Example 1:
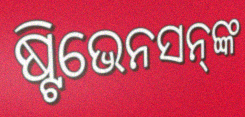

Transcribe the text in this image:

ଷ୍ଟିଭେନସନ୍‍ଙ୍କ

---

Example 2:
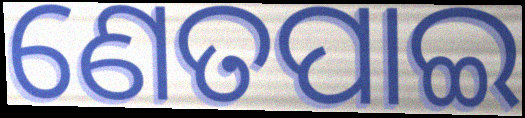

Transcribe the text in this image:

ଣେତପାଇ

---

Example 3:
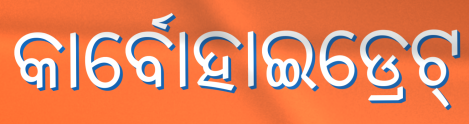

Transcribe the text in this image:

କାର୍ବୋହାଇଡ୍ରେଟ୍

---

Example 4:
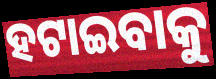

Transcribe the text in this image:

ହଟାଇବାକୁ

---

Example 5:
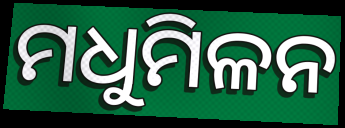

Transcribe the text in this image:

ମଧୁମିଳନ